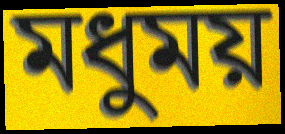
মধুময়